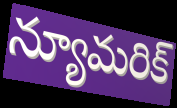
న్యూమరిక్